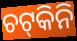
ଚଟ୍‍କିନି